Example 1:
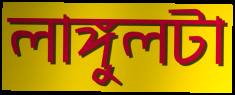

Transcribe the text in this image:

লাঙ্গুলটা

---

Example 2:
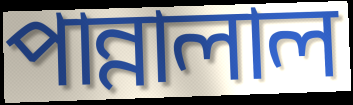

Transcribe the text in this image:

পান্নালাল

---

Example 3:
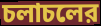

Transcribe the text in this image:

চলাচলের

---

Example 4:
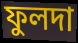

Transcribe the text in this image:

ফুলদা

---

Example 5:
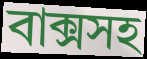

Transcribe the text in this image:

বাক্সসহ